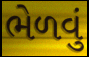
ભેળવું